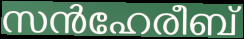
സൻഹേരീബ്